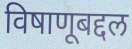
विषाणूबद्दल